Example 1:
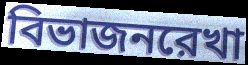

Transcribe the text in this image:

বিভাজনরেখা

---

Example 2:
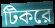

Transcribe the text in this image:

টিকরে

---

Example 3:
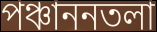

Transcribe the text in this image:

পঞ্চাননতলা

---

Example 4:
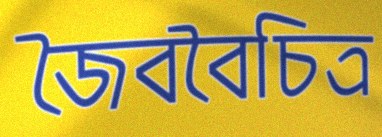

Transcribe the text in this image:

জৈববৈচিত্র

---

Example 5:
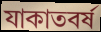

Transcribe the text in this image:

যাকাতবর্ষ